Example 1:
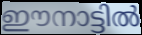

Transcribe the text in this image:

ഈനാട്ടിൽ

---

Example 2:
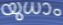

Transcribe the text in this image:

യുധാം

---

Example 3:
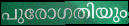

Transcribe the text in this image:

പുരോഗതിയും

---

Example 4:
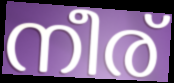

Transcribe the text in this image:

നീര്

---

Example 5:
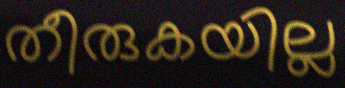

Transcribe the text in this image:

തീരുകയില്ല